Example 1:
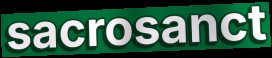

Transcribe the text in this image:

sacrosanct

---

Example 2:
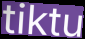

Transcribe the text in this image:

tiktu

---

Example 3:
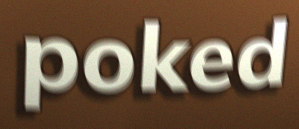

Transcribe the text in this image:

poked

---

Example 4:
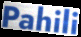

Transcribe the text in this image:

Pahili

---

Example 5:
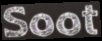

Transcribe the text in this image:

Soot